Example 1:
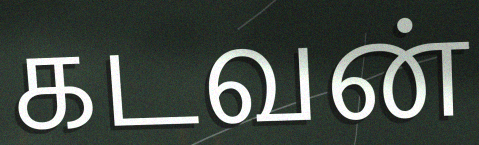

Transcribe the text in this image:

கடவன்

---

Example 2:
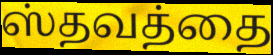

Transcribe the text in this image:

ஸ்தவத்தை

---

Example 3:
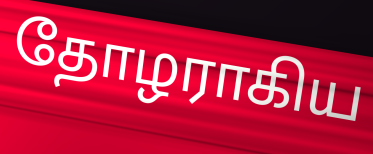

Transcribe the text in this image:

தோழராகிய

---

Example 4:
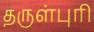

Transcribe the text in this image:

தருள்புரி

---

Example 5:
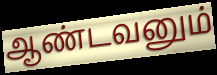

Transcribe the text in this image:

ஆண்டவனும்